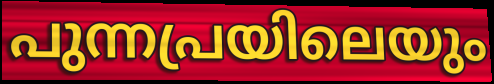
പുന്നപ്രയിലെയും